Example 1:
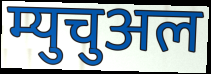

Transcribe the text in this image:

म्युचुअल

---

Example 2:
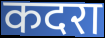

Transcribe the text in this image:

कदरा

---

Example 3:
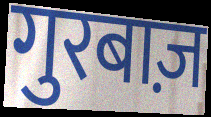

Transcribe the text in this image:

गुरबाज़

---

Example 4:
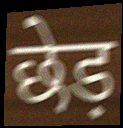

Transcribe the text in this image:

छेड़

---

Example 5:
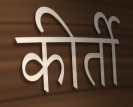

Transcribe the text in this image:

कीर्ती